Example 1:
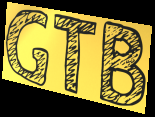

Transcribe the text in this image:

GTB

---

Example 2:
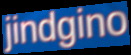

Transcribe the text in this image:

jindgino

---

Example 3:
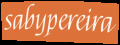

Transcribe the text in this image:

sabypereira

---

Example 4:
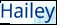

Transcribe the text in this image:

Hailey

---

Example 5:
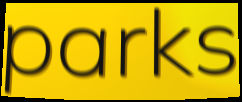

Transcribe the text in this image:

parks